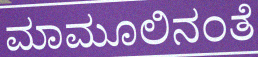
ಮಾಮೂಲಿನಂತೆ